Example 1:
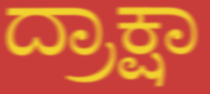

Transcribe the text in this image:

ದ್ರಾಕ್ಷಾ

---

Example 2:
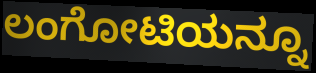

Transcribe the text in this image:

ಲಂಗೋಟಿಯನ್ನೂ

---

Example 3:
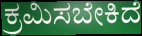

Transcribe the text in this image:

ಕ್ರಮಿಸಬೇಕಿದೆ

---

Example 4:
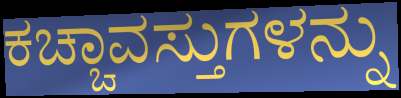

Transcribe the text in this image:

ಕಚ್ಚಾವಸ್ತುಗಳನ್ನು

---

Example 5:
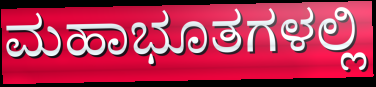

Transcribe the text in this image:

ಮಹಾಭೂತಗಳಲ್ಲಿ